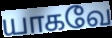
யாகவே